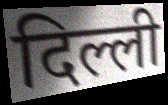
दिल्‍ली